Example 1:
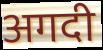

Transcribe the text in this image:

अगदी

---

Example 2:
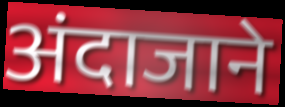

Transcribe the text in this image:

अंदाजाने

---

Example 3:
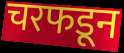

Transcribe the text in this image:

चरफडून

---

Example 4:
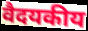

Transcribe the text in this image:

वैदयकीय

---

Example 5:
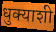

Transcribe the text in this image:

धुक्याशी